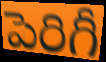
పెరిగీ